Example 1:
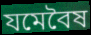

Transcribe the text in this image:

যমেবৈষ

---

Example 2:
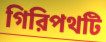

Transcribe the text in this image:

গিরিপথটি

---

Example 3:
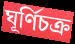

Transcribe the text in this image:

ঘূর্ণিচক্র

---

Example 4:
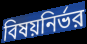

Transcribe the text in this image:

বিষয়নির্ভর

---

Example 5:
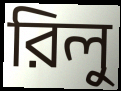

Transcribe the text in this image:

রিলু